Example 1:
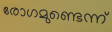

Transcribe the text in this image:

രോഗമുണ്ടെന്ന്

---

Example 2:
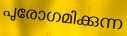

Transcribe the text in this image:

പുരോഗമിക്കുന്ന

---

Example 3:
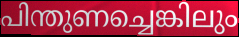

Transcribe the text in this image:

പിന്തുണച്ചെങ്കിലും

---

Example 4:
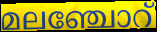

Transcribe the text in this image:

മലഞ്ചോറ്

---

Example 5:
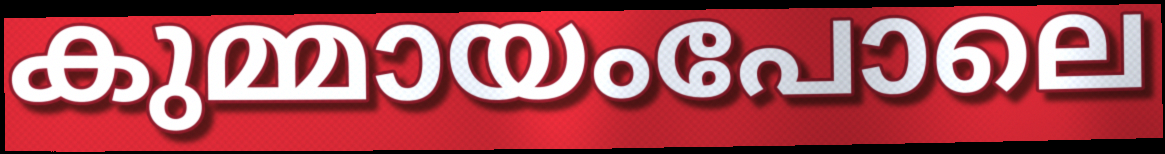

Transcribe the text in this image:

കുമ്മായംപോലെ